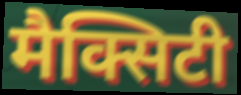
मैक्सिटी